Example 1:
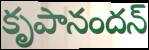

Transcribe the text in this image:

కృపానందన్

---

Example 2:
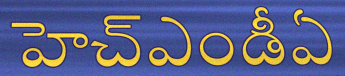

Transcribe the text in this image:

హెచ్ఎండీఏ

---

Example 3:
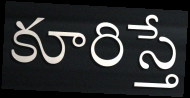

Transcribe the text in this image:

కూరిస్తే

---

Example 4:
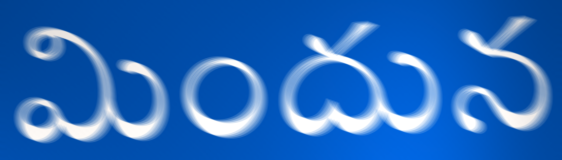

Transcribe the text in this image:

మిందున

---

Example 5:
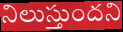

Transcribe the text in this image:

నిలుస్తుందని